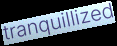
tranquillized